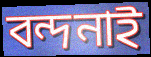
বন্দনাই